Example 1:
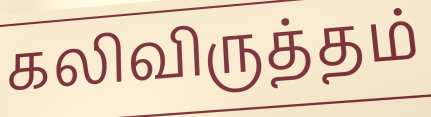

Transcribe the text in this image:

கலிவிருத்தம்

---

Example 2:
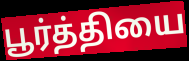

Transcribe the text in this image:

பூர்த்தியை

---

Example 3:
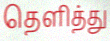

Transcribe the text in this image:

தெளித்து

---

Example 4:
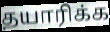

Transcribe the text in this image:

தயாரிக்க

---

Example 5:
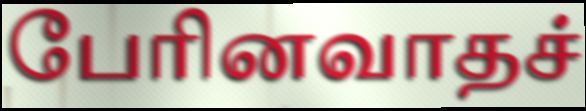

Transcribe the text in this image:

பேரினவாதச்